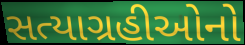
સત્યાગ્રહીઓનો